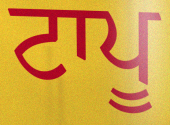
ਟਾਪੂ